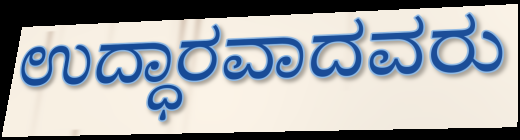
ಉದ್ಧಾರವಾದವರು